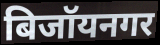
बिजॉयनगर